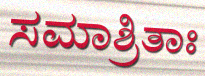
ಸಮಾಶ್ರಿತಾಃ